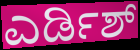
ಎರ್ಡಿಶ್